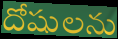
దోషులను